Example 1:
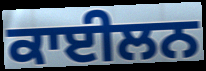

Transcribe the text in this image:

ਕਾਈਲਨ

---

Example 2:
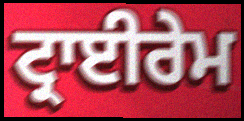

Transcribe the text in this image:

ਟ੍ਰਾਈਰੇਮ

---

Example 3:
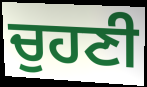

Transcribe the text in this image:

ਚੁਹਣੀ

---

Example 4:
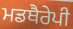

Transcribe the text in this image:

ਮਡਥੈਰੇਪੀ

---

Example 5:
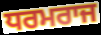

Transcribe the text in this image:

ਧਰਮਰਾਜ